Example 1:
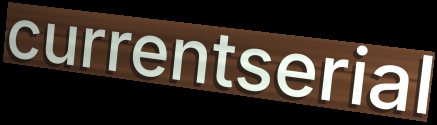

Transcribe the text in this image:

currentserial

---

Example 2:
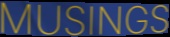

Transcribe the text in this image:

MUSINGS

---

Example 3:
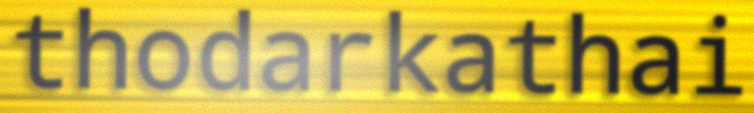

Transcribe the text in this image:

thodarkathai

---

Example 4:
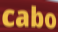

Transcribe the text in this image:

cabo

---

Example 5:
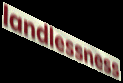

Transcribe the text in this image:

landlessness